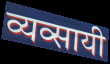
व्यव्सायी